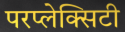
परप्लेक्सिटी